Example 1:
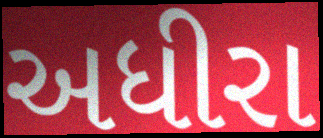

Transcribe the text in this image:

અધીરા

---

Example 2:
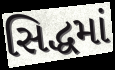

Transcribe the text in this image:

સિદ્ધમાં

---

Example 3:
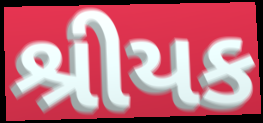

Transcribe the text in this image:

શ્રીયક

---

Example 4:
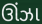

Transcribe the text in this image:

ઊંઝા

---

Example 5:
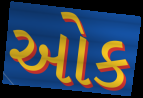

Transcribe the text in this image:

ઓક